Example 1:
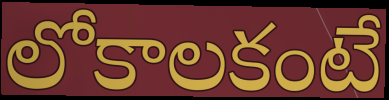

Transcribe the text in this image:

లోకాలకంటే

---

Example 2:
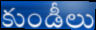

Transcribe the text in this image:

కుండీలు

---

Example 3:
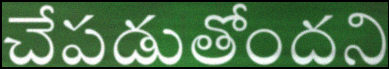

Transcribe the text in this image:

చేపడుతోందని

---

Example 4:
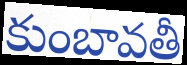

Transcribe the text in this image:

కుంబావతీ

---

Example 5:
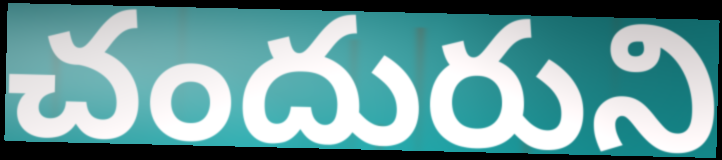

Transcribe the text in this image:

చందురుని